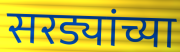
सरड्यांच्या